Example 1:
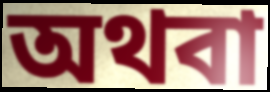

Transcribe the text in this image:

অথবা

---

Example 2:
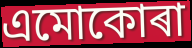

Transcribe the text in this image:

এমোকোৰা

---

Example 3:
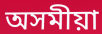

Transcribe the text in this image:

অসমীয়া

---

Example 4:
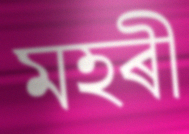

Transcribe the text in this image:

মহৰী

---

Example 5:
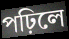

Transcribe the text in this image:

পঢ়িলে